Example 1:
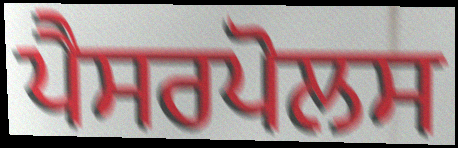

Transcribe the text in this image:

ਪੈਸਰਪੋਲਸ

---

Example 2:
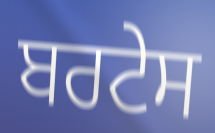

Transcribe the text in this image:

ਬਰਟੇਸ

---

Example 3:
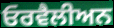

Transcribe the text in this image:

ਓਰਵੈਲੀਅਨ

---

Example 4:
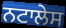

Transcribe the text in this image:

ਨਟਾਲੇਸ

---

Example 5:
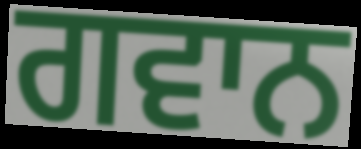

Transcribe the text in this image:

ਗਵਾਨ